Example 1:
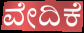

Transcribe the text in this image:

ವೇದಿಕೆ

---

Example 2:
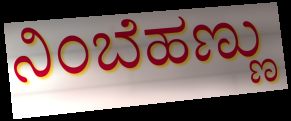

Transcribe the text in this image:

ನಿಂಬೆಹಣ್ಣು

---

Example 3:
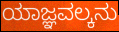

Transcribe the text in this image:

ಯಾಜ್ಞವಲ್ಕನು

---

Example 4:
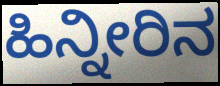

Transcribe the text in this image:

ಹಿನ್ನೀರಿನ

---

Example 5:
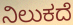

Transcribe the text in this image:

ನಿಲುಕದೆ